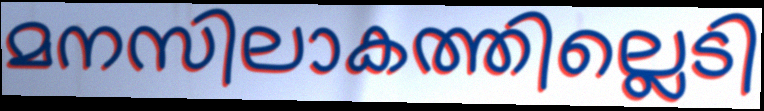
മനസിലാകത്തില്ലെടി